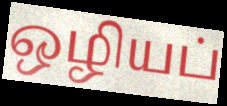
ஒழியப்